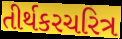
તીર્થકરચરિત્ર